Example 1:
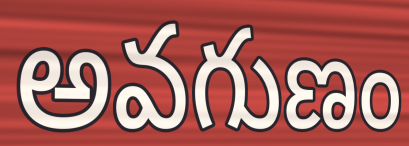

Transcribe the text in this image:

అవగుణం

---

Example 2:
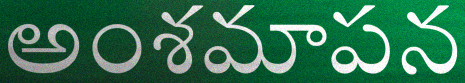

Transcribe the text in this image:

అంశమాపన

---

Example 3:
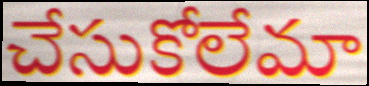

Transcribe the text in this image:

చేసుకోలేమా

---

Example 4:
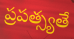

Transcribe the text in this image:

ప్రపత్స్యతే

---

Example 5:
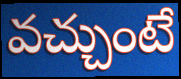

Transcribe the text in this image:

వచ్చుంటే